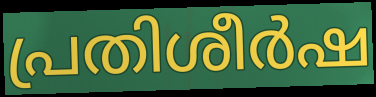
പ്രതിശീർഷ